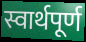
स्वार्थपूर्ण